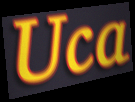
Uca